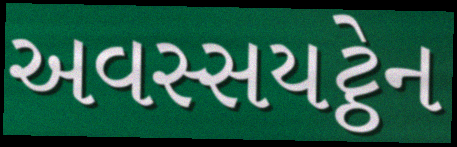
અવસ્સયટ્ઠેન